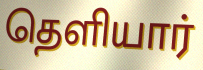
தெளியார்